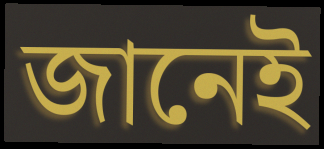
জানেই